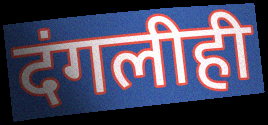
दंगलीही